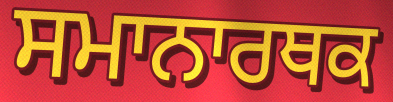
ਸਮਾਨਾਰਥਕ